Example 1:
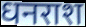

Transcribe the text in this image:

धनराश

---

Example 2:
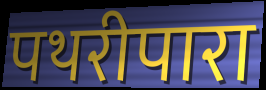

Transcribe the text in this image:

पथरीपारा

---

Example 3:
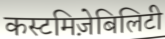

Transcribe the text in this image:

कस्टमिज़ेबिलिटी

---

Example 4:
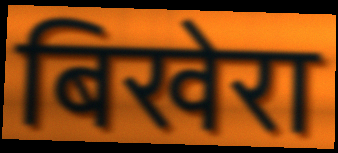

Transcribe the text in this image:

बिखेरा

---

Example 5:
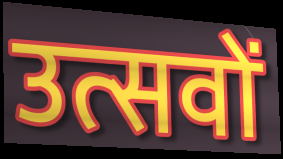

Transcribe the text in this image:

उत्सवों